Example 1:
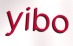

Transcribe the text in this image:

yibo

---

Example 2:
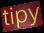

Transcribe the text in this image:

tipy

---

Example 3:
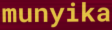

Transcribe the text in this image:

munyika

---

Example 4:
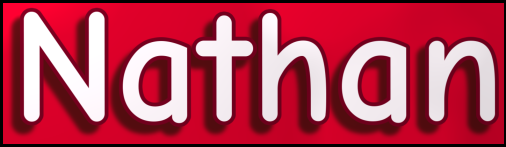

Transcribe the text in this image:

Nathan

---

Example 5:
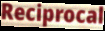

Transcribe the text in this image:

Reciprocal